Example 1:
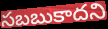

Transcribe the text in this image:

సబబుకాదని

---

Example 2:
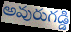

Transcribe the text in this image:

అవురుగడ్డి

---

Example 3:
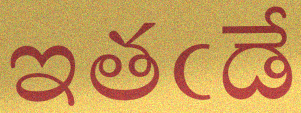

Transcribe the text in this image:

ఇతఁడే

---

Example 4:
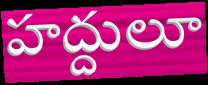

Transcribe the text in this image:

హద్దులూ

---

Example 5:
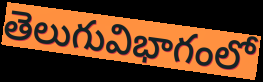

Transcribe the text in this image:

తెలుగువిభాగంలో